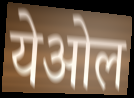
येओल